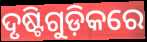
ଦୃଷ୍ଟିଗୁଡ଼ିକରେ